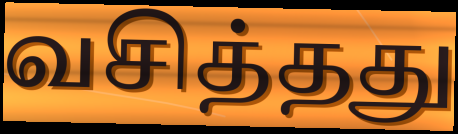
வசித்தது